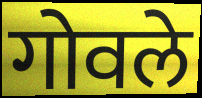
गोवले